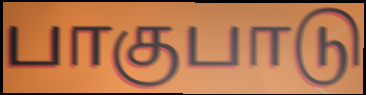
பாகுபாடு